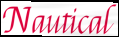
Nautical